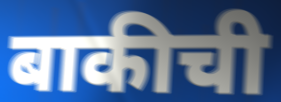
बाकीची